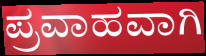
ಪ್ರವಾಹವಾಗಿ